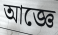
আজ্ঞে